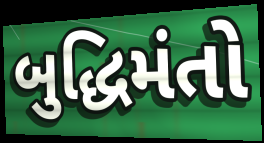
બુદ્ધિમંતો